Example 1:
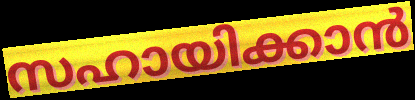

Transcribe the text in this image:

സഹായിക്കാൻ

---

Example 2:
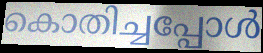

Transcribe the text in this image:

കൊതിച്ചപ്പോൾ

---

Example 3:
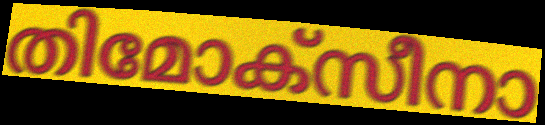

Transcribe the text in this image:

തിമോക്സീനാ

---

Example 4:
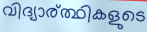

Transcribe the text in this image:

വിദ്യാര്ത്ഥികളുടെ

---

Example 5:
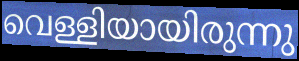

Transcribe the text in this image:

വെള്ളിയായിരുന്നു